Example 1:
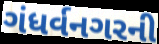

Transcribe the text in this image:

ગંધર્વનગરની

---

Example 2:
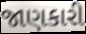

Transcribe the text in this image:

જાણકારી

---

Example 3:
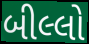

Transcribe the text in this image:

બીલ્લો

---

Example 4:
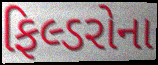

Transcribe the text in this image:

ફિલ્ડરોના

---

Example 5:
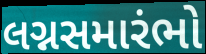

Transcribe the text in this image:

લગ્નસમારંભો